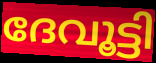
ദേവൂട്ടി